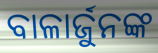
ବାଳାର୍ଜୁନଙ୍କ